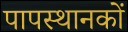
पापस्थानकों